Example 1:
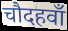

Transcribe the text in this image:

चौदहवाँ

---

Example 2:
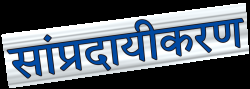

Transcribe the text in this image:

सांप्रदायीकरण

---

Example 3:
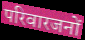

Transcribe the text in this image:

परिवारजनों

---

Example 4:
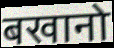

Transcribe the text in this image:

बखानो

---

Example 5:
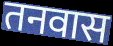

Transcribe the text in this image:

तनवास